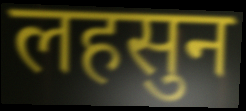
लहसुन